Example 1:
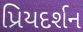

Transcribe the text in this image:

પ્રિયદર્શન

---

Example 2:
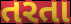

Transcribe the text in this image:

તરતા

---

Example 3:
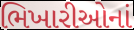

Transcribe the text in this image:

ભિખારીઓનાં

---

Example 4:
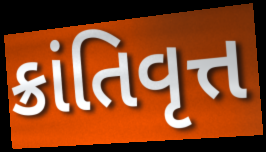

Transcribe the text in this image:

ક્રાંતિવૃત્ત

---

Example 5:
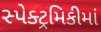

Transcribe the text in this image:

સ્પેક્ટ્રમિકીમાં